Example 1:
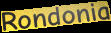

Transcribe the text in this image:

Rondonia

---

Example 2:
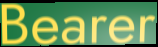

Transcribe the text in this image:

Bearer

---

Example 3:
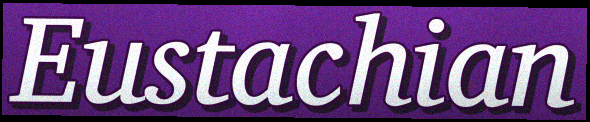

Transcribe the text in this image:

Eustachian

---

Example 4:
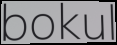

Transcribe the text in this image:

bokul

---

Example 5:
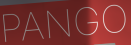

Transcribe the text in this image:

PANGO